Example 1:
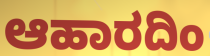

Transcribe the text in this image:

ಆಹಾರದಿಂ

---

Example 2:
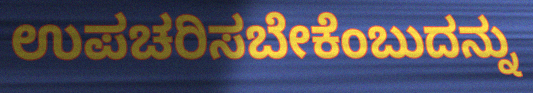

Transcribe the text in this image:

ಉಪಚರಿಸಬೇಕೆಂಬುದನ್ನು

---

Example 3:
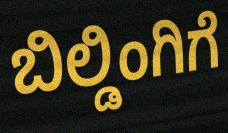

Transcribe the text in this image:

ಬಿಲ್ಡಿಂಗಿಗೆ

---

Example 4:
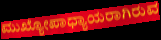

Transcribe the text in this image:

ಮುಖ್ಯೋಪಾಧ್ಯಾಯರಾಗಿರುವ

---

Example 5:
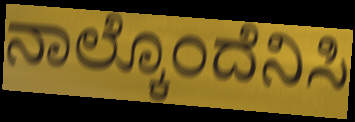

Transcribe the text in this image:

ನಾಲ್ಕೊಂದೆನಿಸಿ